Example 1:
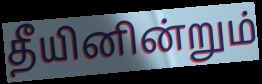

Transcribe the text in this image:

தீயினின்றும்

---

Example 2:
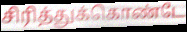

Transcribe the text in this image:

சிரித்துக்கொண்டே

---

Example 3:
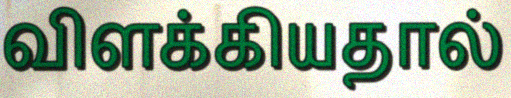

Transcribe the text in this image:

விளக்கியதால்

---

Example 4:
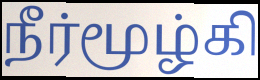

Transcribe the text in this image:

நீர்மூழ்கி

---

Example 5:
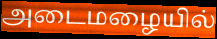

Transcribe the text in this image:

அடைமழையில்